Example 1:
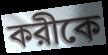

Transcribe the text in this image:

করীকে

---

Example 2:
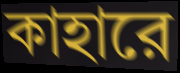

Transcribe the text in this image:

কাহারে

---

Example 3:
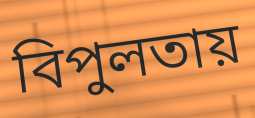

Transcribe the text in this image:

বিপুলতায়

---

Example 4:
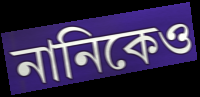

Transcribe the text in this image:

নানিকেও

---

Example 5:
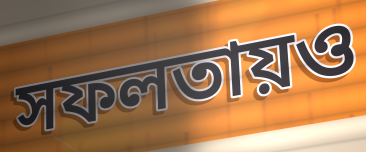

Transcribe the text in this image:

সফলতায়ও